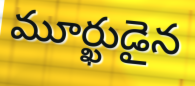
మూర్ఖుడైన